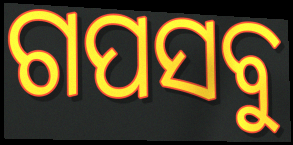
ଗପସବୁ